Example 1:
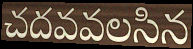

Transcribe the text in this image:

చదవవలసిన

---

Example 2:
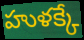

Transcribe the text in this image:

హుళక్కే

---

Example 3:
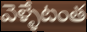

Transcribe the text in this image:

వెళ్ళేటంత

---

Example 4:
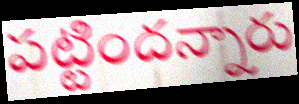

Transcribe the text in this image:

పట్టిందన్నారు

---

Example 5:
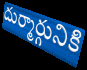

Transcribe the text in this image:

దుర్మార్గునికి